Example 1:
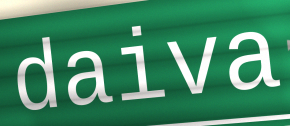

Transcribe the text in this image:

daiva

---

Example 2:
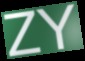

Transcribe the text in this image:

ZY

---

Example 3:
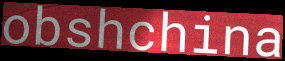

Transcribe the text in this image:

obshchina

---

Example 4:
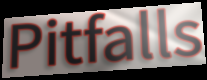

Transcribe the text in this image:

Pitfalls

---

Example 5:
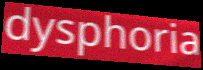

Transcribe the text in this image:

dysphoria